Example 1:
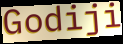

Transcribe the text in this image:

Godiji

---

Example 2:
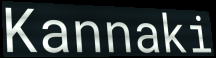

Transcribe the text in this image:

Kannaki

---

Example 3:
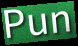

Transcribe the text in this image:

Pun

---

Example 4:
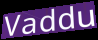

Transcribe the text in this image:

Vaddu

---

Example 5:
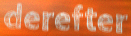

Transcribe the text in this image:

derefter